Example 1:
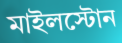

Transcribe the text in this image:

মাইলস্টোন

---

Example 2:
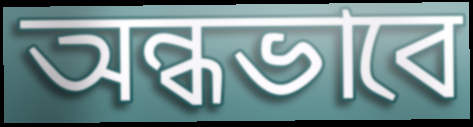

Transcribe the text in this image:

অন্ধভাবে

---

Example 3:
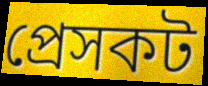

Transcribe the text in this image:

প্রেসকট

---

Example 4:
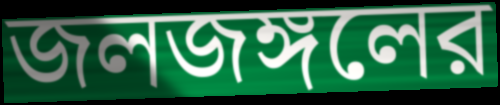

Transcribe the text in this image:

জলজঙ্গলের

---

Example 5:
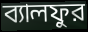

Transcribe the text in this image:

ব্যালফুর